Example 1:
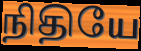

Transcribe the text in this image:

நிதியே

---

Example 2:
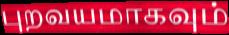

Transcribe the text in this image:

புறவயமாகவும்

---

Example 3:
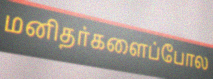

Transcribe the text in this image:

மனிதர்களைப்போல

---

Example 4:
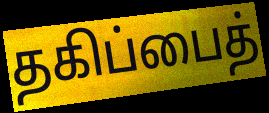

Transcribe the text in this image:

தகிப்பைத்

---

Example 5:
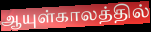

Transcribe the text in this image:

ஆயுள்காலத்தில்